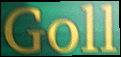
Goll